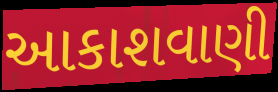
આકાશવાણી